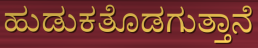
ಹುಡುಕತೊಡಗುತ್ತಾನೆ